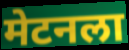
मेटनला